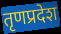
तृणप्रदेश